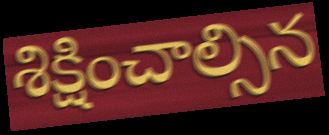
శిక్షించాల్సిన